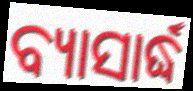
ବ୍ୟାସାର୍ଦ୍ଧ